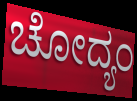
ಚೋದ್ಯಂ